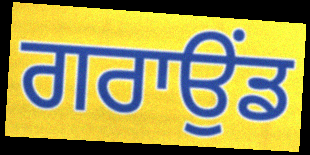
ਗਰਾਉਂਡ